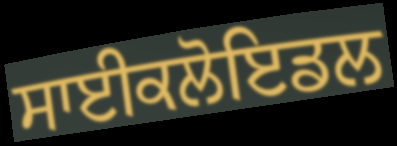
ਸਾਈਕਲੋਇਡਲ